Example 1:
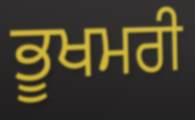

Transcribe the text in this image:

ਭੂਖਮਰੀ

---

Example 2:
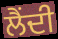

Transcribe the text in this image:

ਲੈਂਦੀ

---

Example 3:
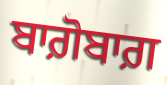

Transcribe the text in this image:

ਬਾਗ਼ੋਬਾਗ਼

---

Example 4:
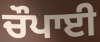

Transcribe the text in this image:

ਚੌਪਾਈ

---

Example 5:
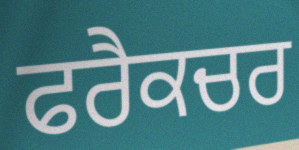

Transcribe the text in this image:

ਫਰੈਕਚਰ